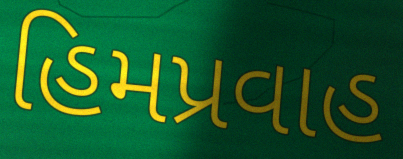
હિમપ્રવાહ